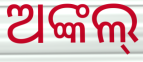
ଅଙ୍କଲ୍